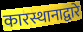
कारस्थानाद्वारे